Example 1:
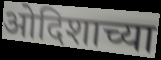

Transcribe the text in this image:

ओदिशाच्या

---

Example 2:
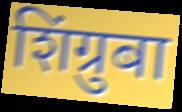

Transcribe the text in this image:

शिंग्रुबा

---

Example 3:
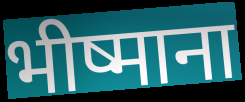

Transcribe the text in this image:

भीष्माना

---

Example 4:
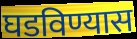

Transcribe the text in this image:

घडविण्यास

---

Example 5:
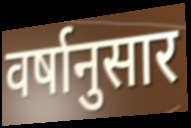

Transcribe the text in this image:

वर्षानुसार